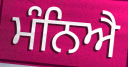
ਮੰਨਿਐ